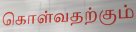
கொள்வதற்கும்